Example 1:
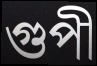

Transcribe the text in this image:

গুপী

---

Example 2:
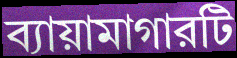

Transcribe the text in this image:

ব্যায়ামাগারটি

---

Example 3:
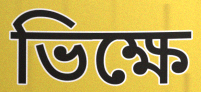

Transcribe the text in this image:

ভিক্ষে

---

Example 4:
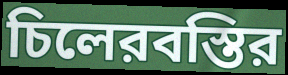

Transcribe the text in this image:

চিলেরবস্তির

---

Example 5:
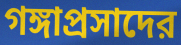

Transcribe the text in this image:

গঙ্গাপ্রসাদের